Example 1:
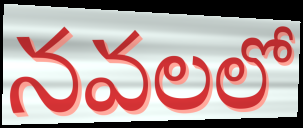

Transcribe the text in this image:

నవలలో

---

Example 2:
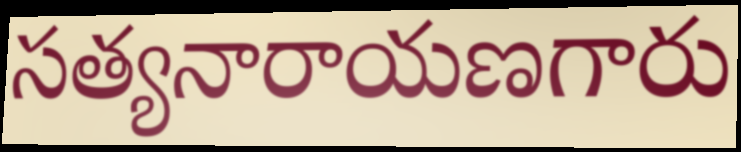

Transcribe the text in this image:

సత్యనారాయణగారు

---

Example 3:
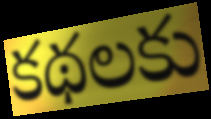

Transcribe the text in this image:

కథలకు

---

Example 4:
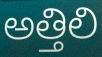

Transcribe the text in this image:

అత్తిలి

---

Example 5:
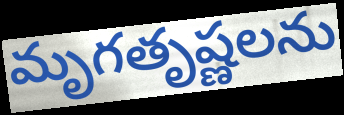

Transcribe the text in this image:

మృగతృష్ణలను